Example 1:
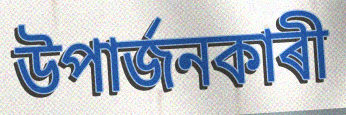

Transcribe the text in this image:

উপাৰ্জনকাৰী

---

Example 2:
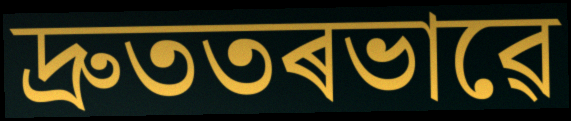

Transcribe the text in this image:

দ্ৰুততৰভাৱে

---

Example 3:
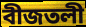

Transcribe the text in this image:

বীজতলী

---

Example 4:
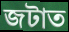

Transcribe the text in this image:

জটাত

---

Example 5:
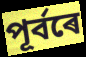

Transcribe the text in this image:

পূৰ্বৰে